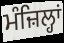
ਮੰਜ਼ਿਲ੍ਹਾਂ